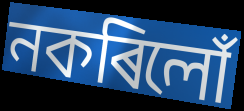
নকৰিলোঁ